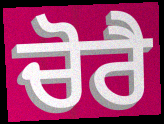
ਚੋਰੈ